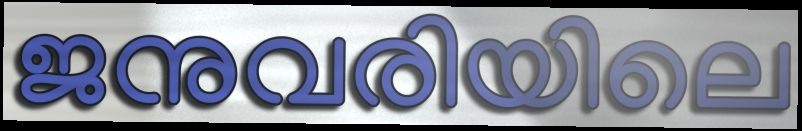
ജനുവരിയിലെ